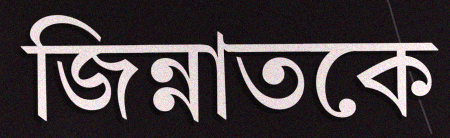
জিন্নাতকে